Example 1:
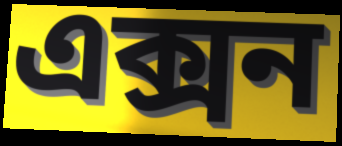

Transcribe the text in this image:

এক্সন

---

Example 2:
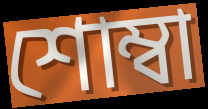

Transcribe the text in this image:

শোম্বা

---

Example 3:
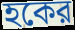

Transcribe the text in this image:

হকের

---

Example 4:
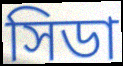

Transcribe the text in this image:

সিডা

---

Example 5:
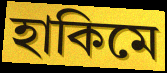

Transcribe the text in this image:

হাকিমে